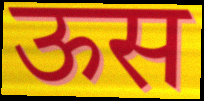
ऊस